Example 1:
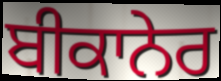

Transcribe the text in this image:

ਬੀਕਾਨੇਰ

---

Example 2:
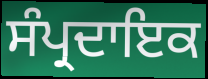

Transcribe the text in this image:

ਸੰਪ੍ਰਦਾਇਕ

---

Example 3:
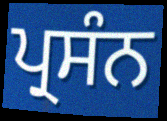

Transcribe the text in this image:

ਪ੍ਰਸੰਨ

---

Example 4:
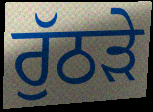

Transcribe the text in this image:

ਰੁੱਠੜੇ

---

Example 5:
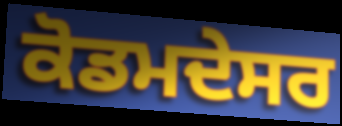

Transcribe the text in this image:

ਕੋਡਮਦੇਸਰ